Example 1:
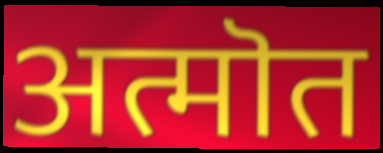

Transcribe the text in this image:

अत्मॊत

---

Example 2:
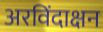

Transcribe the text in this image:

अरविंदाक्षन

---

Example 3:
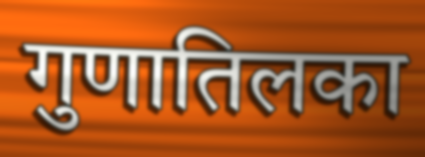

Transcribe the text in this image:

गुणातिलका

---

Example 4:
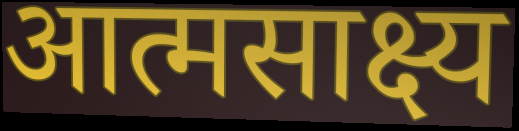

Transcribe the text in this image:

आत्मसाक्ष्य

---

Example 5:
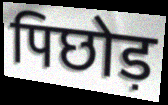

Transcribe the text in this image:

पिछोड़